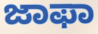
ಜಾಫಾ